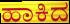
ಹಾಕಿದ